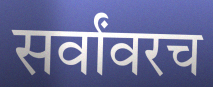
सर्वांवरच